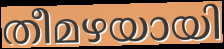
തീമഴയായി